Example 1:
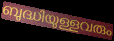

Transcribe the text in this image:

ബുദ്ധിയുള്ളവരും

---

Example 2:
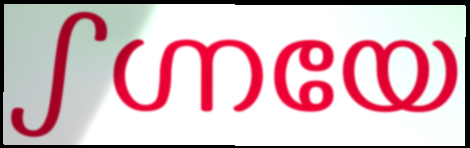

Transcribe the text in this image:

ഽഗ്നയേ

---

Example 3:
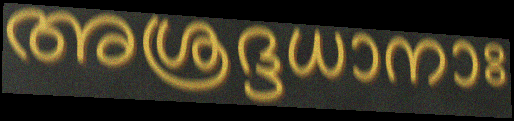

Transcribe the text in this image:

അശ്രദ്ദധാനാഃ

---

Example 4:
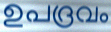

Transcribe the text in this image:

ഉപദ്രവം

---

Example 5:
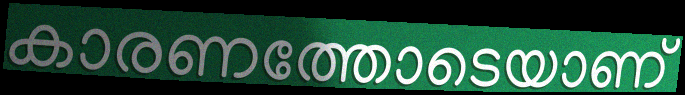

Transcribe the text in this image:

കാരണത്തോടെയാണ്